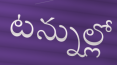
టన్నుల్లో